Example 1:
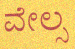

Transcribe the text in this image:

ವೇಲ್ಸ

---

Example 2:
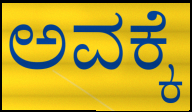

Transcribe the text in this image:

ಅವಕ್ಕೆ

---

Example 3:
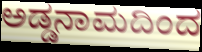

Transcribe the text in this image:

ಅಡ್ಡನಾಮದಿಂದ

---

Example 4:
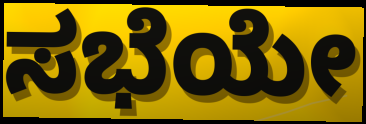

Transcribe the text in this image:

ಸಭೆಯೇ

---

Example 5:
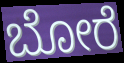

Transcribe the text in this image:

ಬೋರೆ